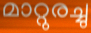
മാറ്റുരച്ചു